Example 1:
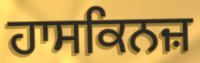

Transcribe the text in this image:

ਹਾਸਕਿਨਜ਼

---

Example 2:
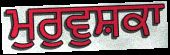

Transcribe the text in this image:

ਮੁਰੁਵੁਸ਼ਕਾ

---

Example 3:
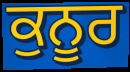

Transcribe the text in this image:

ਕੁਨੂਰ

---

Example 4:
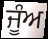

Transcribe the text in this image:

ਜੂੰਅ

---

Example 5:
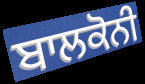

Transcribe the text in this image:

ਬਾਲਕੋਨੀ